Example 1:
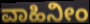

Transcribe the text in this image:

ವಾಹಿನೀಂ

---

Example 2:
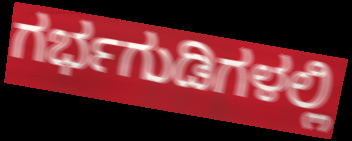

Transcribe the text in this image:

ಗರ್ಭಗುಡಿಗಳಲ್ಲಿ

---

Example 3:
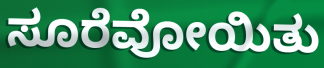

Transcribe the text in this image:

ಸೂರೆವೋಯಿತು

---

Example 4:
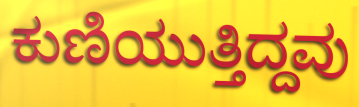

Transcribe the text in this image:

ಕುಣಿಯುತ್ತಿದ್ದವು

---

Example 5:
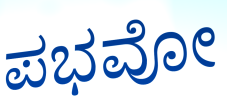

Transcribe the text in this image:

ಪಭವೋ